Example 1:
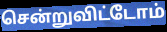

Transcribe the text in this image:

சென்றுவிட்டோம்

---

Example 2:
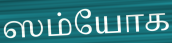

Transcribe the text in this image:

ஸம்யோக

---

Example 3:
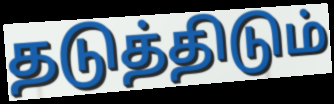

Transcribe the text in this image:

தடுத்திடும்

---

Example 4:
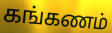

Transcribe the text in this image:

கங்கணம்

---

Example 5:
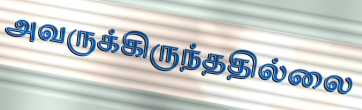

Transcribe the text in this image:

அவருக்கிருந்ததில்லை